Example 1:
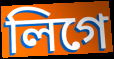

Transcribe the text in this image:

লিগে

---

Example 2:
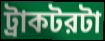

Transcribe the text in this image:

ট্রাকটরটা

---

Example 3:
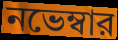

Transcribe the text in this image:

নভেম্বার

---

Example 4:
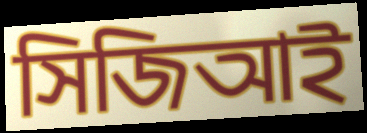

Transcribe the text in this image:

সিজিআই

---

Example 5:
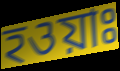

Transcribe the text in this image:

হওয়াঃ